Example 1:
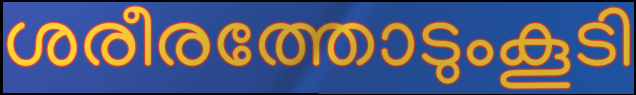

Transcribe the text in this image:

ശരീരത്തോടുംകൂടി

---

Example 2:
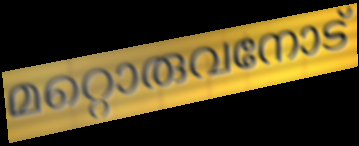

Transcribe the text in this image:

മറ്റൊരുവനോട്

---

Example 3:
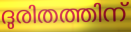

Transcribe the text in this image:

ദുരിതത്തിന്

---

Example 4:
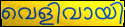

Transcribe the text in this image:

വെളിവായി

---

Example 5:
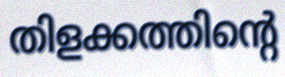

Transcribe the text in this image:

തിളക്കത്തിന്റെ